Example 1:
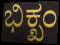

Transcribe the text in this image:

ಭಿಕ್ಖಂ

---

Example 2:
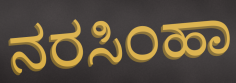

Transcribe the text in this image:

ನರಸಿಂಹಾ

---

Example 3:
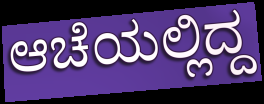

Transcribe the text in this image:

ಆಚೆಯಲ್ಲಿದ್ದ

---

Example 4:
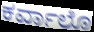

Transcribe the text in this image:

ಕರ್ವಾಲೊ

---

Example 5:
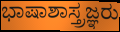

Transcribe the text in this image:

ಭಾಷಾಶಾಸ್ತ್ರಜ್ಞರು